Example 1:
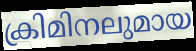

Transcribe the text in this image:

ക്രിമിനലുമായ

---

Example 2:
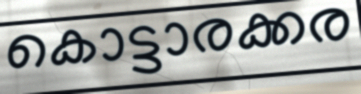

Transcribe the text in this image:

കൊട്ടാരക്കര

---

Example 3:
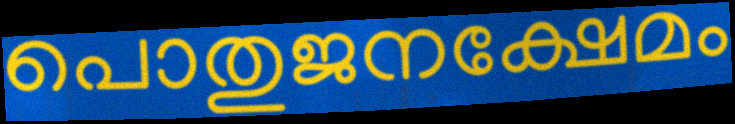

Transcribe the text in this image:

പൊതുജനക്ഷേമം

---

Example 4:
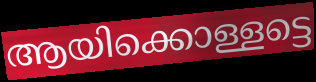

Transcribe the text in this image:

ആയിക്കൊള്ളട്ടെ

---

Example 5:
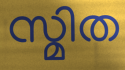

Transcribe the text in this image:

സ്മിത